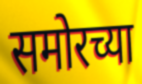
समोरच्या